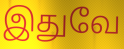
இதுவே